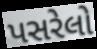
પસરેલો